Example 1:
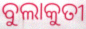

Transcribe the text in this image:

ବୁଲାକୁତୀ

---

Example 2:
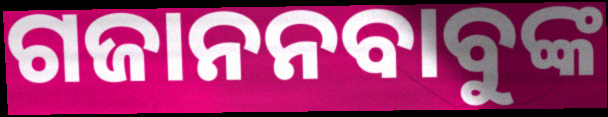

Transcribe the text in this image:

ଗଜାନନବାବୁଙ୍କ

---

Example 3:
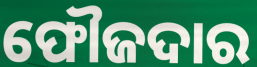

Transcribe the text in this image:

ଫୌଜଦାର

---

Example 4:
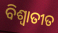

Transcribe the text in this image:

ବିଶ୍ୱାତୀତ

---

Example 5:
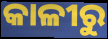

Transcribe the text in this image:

କାଳୀରୁ